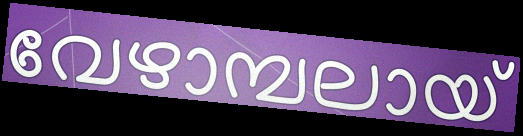
വേഴാമ്പലായ്